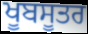
ਖੂਬਸੂਤਰ